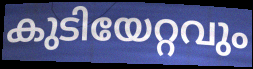
കുടിയേറ്റവും